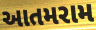
આતમરામ